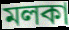
মলকা